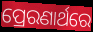
ପ୍ରେରଣାର୍ଥରେ